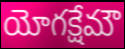
యోగక్షేమౌ